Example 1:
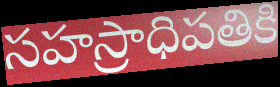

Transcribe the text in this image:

సహస్రాధిపతికి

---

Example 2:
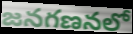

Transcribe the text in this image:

జనగణనలో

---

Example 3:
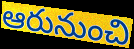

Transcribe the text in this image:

ఆరునుంచి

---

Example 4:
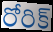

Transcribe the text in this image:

రోరిక్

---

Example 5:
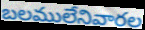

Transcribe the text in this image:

బలములేనివారల